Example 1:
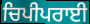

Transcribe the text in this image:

ਚਿਪੀਪਰਾਈ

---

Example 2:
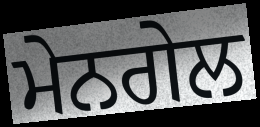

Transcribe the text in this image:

ਮੇਨਗੇਲ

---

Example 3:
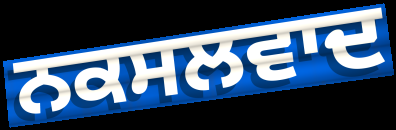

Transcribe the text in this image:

ਨਕਸਲਵਾਦ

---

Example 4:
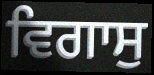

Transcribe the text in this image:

ਵਿਗਾਸੁ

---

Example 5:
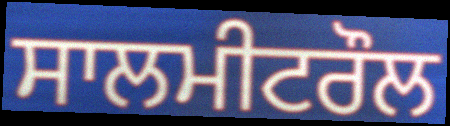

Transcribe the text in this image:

ਸਾਲਮੀਟਰੌਲ